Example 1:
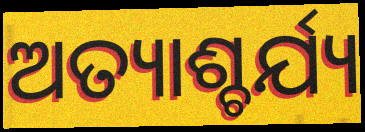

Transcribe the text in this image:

ଅତ୍ୟାଶ୍ଚର୍ଯ୍ୟ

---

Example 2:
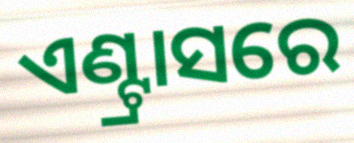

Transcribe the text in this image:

ଏଣ୍ଟ୍ରାସରେ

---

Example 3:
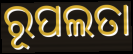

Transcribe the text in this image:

ରୂପଲତା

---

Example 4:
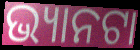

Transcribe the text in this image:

ଭ୍ୟାନଟା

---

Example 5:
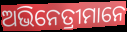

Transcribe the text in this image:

ଅଭିନେତ୍ରୀମାନେ